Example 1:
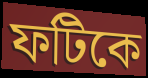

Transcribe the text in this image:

ফটিকে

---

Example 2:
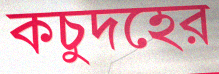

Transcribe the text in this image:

কচুদহের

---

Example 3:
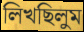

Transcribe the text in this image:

লিখছিলুম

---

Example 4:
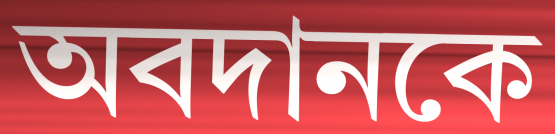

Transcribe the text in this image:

অবদানকে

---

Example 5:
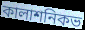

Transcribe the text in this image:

কালাশনিকভ